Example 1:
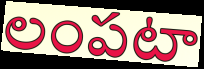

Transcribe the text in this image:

లంపటా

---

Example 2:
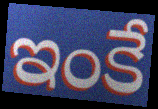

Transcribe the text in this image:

ఇంకే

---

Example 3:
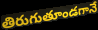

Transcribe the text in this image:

తిరుగుతూండగానే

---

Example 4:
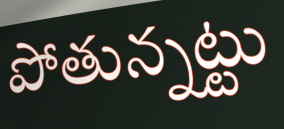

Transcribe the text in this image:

పోతున్నట్టు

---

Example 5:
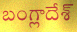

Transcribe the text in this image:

బంగ్లాదేశ్